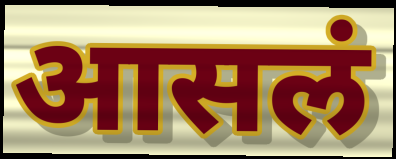
आसलं